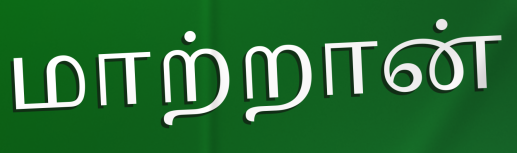
மாற்றான்